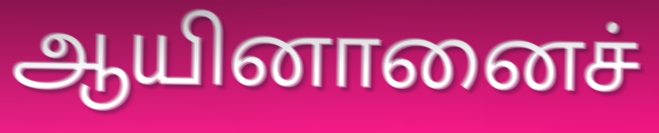
ஆயினானைச்